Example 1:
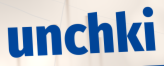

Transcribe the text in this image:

unchki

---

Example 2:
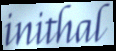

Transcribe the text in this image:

inithal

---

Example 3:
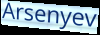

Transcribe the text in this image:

Arsenyev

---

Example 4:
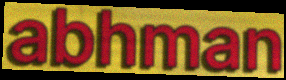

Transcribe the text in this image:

abhman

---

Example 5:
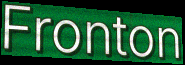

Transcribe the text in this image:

Fronton